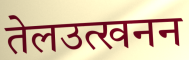
तेलउत्खनन